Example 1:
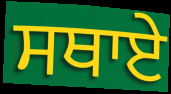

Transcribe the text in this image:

ਸਥਾਏ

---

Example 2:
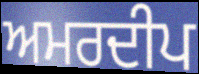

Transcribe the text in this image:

ਅਮਰਦੀਪ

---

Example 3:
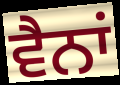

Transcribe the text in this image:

ਵੈਨਾਂ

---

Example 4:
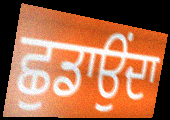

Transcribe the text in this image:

ਛੁਡਾਉਂਦਾ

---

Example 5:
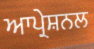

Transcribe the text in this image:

ਆਪ੍ਰੇਸ਼ਨਲ